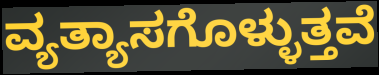
ವ್ಯತ್ಯಾಸಗೊಳ್ಳುತ್ತವೆ